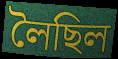
লৈছিল